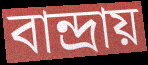
বান্দ্রায়